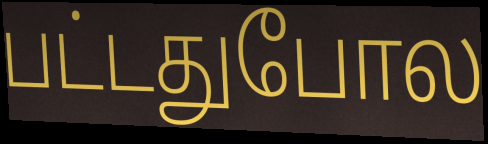
பட்டதுபோல